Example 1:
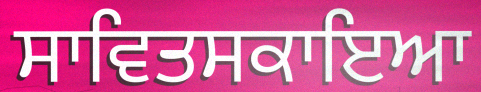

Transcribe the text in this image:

ਸਾਵਿਤਸਕਾਇਆ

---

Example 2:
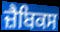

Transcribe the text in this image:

ਜ਼ੈਬਿਕਸ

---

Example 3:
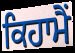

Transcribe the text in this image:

ਕਿਹਾਮੈਂ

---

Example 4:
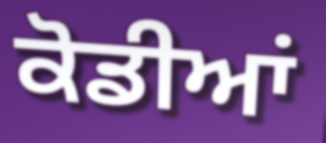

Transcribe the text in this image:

ਕੋਡੀਆਂ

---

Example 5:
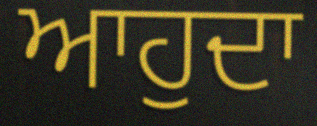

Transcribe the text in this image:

ਆਹੁਦਾ